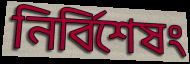
নির্বিশেষং